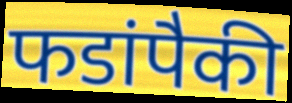
फडांपैकी